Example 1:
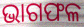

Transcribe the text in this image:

ଭାଗଫଳ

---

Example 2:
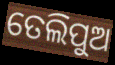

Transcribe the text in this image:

ତେଲିପୁଅ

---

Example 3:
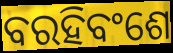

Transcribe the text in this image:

ବରହିବଂଶେ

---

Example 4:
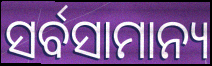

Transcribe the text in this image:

ସର୍ବସାମାନ୍ୟ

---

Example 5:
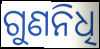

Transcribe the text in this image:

ଗୁଣନିଧି